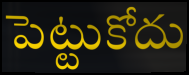
పెట్టుకోదు